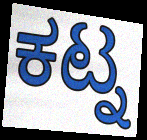
ಕಟ್ನ